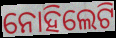
ନୋହିଲେଟି